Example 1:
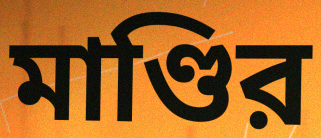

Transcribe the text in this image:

মাণ্ডির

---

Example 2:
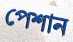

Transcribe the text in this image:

পেশান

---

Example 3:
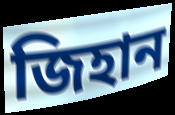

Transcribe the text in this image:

জিহান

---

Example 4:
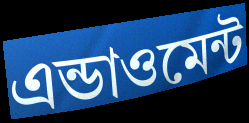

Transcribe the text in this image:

এন্ডাওমেন্ট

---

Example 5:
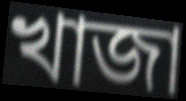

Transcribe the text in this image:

খাজা